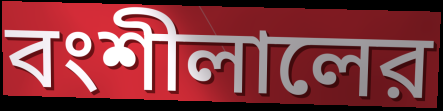
বংশীলালের